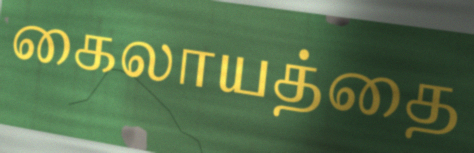
கைலாயத்தை